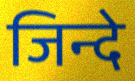
जिन्दे